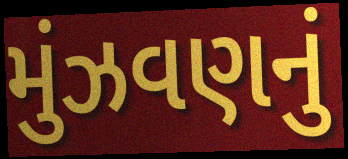
મુંઝવણનું